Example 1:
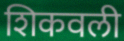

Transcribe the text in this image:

शिकवली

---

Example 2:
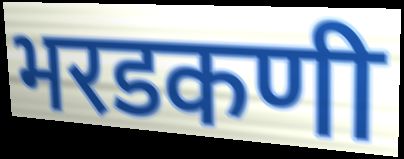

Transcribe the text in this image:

भरडकणी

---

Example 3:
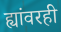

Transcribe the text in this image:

ह्यांवरही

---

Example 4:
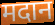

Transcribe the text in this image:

मदान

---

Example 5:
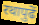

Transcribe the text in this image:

रथापुढें